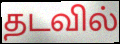
தடவில்